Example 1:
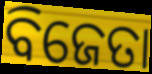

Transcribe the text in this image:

ବିଜେତା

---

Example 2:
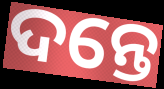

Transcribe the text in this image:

ଦନ୍ତେ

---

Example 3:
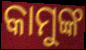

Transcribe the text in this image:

କାମୁଙ୍କ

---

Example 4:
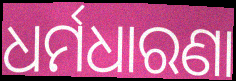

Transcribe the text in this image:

ଧର୍ମଧାରଣା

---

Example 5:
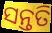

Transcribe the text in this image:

ସନ୍ତତି